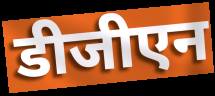
डीजीएन